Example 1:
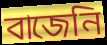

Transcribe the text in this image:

বাজেনি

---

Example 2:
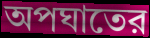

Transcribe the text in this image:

অপঘাতের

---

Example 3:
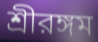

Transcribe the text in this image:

শ্রীরঙ্গম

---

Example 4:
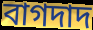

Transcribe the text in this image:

বাগদাদ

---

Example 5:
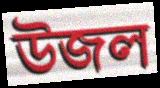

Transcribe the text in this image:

উজল